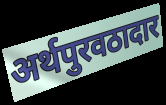
अर्थपुरवठादार